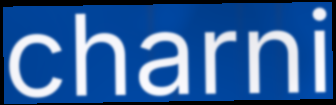
charni